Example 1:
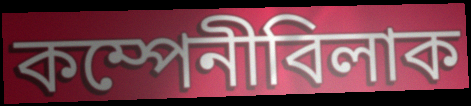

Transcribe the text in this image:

কম্পেনীবিলাক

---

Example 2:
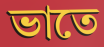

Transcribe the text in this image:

ভাতে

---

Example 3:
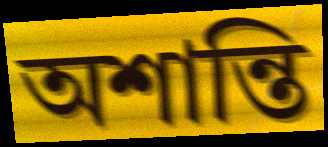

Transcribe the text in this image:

অশান্তি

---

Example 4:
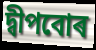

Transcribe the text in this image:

দ্বীপবোৰ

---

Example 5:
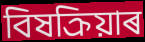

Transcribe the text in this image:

বিষক্ৰিয়াৰ